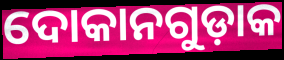
ଦୋକାନଗୁଡ଼ାକ